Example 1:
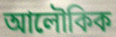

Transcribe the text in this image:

আলৌকিক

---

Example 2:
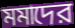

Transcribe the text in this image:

মমাদের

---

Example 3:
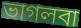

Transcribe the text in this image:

ভাগলবা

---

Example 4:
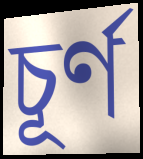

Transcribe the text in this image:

চূর্ণ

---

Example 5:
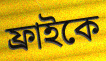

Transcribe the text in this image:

ফ্রাইকে